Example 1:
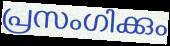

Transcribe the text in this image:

പ്രസംഗിക്കും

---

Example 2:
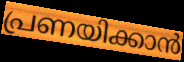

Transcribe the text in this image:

പ്രണയിക്കാൻ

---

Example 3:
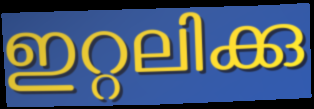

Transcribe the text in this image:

ഇറ്റലിക്കു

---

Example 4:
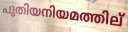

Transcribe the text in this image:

പുതിയനിയമത്തില്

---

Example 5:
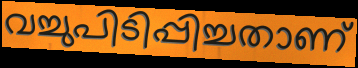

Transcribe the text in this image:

വച്ചുപിടിപ്പിച്ചതാണ്